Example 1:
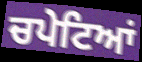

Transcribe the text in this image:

ਚਪੇਟਿਆਂ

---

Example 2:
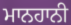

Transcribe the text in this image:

ਮਾਨਹਾਨੀ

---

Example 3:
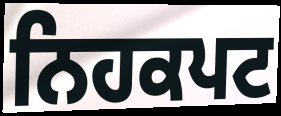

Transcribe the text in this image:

ਨਿਹਕਪਟ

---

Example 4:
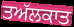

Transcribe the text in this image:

ਤਅੱਲਕਾਤ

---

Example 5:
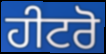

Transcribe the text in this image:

ਹੀਟਰੋ